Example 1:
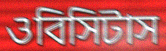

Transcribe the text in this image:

ওবিসিটাস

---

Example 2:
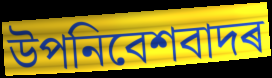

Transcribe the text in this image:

উপনিবেশবাদৰ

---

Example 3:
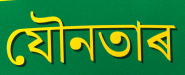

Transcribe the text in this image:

যৌনতাৰ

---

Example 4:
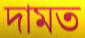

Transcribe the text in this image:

দামত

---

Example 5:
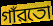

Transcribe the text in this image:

গাঁৱতো